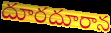
దూరదూరాన